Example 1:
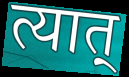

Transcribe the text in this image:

त्यात्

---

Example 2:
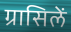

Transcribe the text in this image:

ग्रासिलें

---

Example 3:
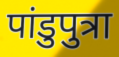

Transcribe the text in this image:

पांडुपुत्रा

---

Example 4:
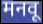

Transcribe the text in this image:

मनवू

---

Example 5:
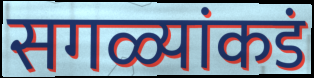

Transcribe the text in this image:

सगळ्यांकडं